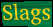
Slags